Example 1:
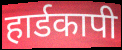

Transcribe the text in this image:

हार्डकापी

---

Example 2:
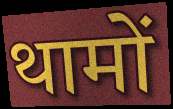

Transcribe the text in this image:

थामों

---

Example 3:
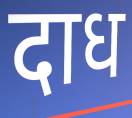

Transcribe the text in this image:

दाध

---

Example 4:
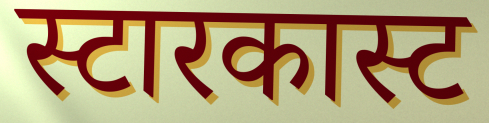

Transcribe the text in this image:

स्टारकास्ट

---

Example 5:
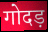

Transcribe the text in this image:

गोदड़